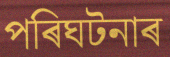
পৰিঘটনাৰ